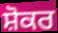
ਸ਼ੋਕਰ